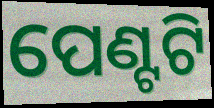
ପେଣ୍ଟଟି